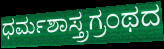
ಧರ್ಮಶಾಸ್ತ್ರಗ್ರಂಥದ